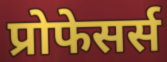
प्रोफेसर्स